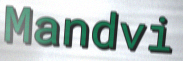
Mandvi